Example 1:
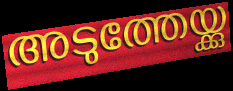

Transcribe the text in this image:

അടുത്തേയ്ക്കു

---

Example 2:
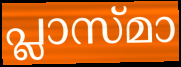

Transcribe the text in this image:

പ്ലാസ്മാ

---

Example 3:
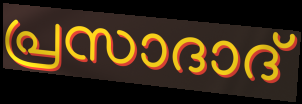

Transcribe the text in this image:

പ്രസാദാദ്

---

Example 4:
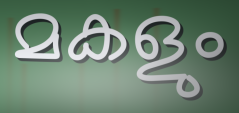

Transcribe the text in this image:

മകളും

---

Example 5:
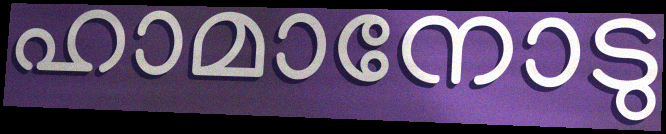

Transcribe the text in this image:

ഹാമാനോടു